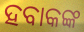
ହବାକଙ୍କ